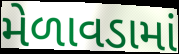
મેળાવડામાં